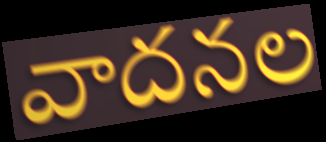
వాదనల